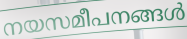
നയസമീപനങ്ങൾ